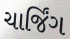
ચાર્જિંગ